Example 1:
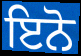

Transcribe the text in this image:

ਇਨੋ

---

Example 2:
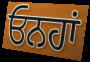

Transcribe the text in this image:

ਓਨਹਾਂ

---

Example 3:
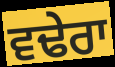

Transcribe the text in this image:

ਵਢੇਰਾ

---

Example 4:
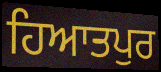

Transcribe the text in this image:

ਹਿਆਤਪੁਰ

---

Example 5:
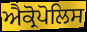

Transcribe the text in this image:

ਐਕ੍ਰੋਪੋਲਿਸ